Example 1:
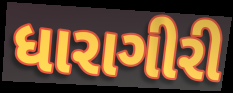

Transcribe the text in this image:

ધારાગીરી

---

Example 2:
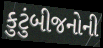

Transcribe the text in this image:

કુટુંબીજનોની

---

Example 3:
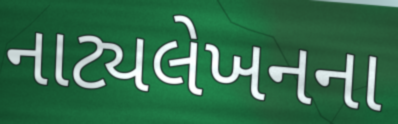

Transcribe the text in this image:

નાટ્યલેખનના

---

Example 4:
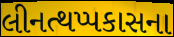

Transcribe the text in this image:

લીનત્થપ્પકાસના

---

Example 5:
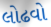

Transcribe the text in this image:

લોઢવો